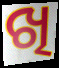
ଖି